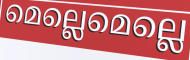
മെല്ലെമെല്ലെ